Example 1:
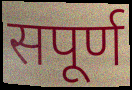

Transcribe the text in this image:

सपूर्ण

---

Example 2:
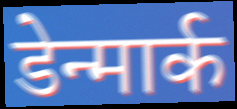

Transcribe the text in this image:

डेन्मार्क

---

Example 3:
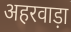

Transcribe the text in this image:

अहरवाड़ा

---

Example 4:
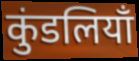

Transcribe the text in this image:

कुंडलियाँ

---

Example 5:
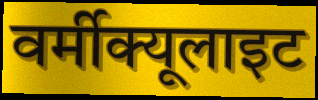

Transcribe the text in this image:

वर्मीक्यूलाइट